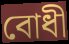
বোধী